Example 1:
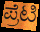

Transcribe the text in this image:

ಪ್ರೆಟಿ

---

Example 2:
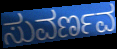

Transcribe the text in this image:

ಸುವರ್ಣವ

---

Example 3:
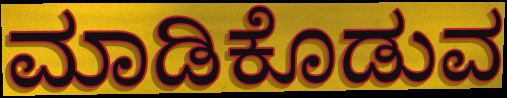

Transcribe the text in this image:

ಮಾಡಿಕೊಡುವ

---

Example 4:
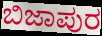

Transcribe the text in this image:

ಬಿಜಾಪುರ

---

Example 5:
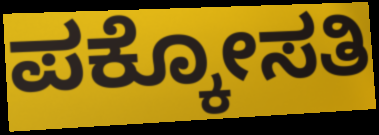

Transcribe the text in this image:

ಪಕ್ಕೋಸತಿ